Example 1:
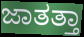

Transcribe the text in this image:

ಜಾತತ್ತಾ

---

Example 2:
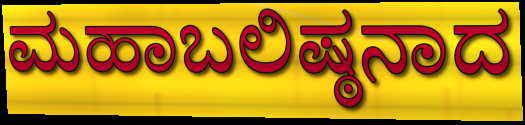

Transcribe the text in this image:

ಮಹಾಬಲಿಷ್ಠನಾದ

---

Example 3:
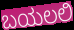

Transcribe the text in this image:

ಬಯಲಲಿ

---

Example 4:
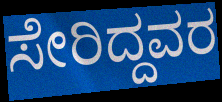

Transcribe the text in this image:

ಸೇರಿದ್ದವರ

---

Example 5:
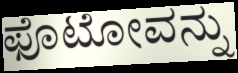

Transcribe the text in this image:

ಫೊಟೋವನ್ನು